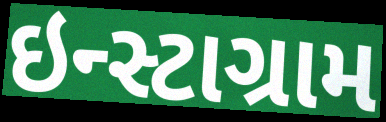
ઇન્સ્ટાગ્રામ